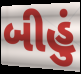
બીહું